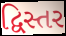
દ્વિસ્તર